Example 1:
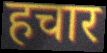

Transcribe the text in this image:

हचार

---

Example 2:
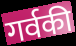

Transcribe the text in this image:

गर्वकी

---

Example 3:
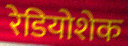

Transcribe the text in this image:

रेडियोशेक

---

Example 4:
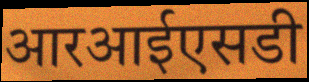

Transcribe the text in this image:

आरआईएसडी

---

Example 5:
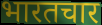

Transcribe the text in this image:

भारतचार